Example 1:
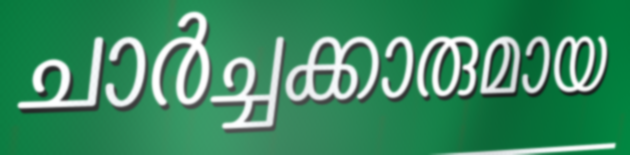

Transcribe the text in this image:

ചാർച്ചക്കാരുമായ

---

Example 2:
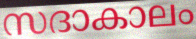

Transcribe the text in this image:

സദാകാലം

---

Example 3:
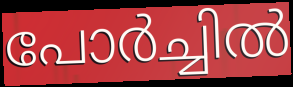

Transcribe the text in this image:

പോർച്ചിൽ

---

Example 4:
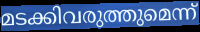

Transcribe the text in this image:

മടക്കിവരുത്തുമെന്ന്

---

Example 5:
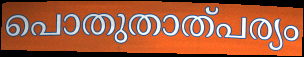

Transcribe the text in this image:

പൊതുതാത്പര്യം